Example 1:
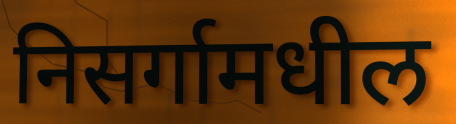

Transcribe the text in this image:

निसर्गामधील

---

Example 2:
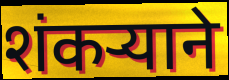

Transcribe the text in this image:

शंकर्‍याने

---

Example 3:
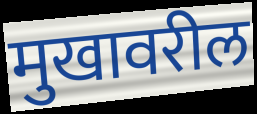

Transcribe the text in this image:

मुखावरील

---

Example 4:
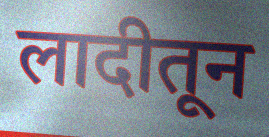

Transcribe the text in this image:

लादीतून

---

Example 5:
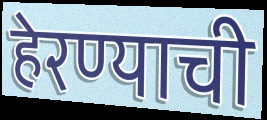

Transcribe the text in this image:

हेरण्याची